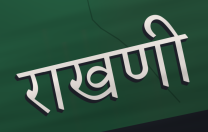
राखणी